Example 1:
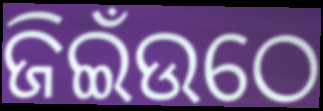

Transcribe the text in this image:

ଜିଇଁଉଠେ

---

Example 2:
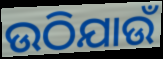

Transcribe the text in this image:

ଉଠିଯାଉଁ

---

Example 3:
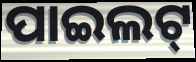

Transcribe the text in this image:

ପାଇଲଟ୍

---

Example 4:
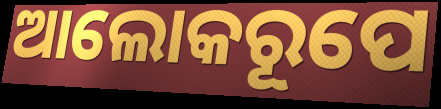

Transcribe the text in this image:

ଆଲୋକରୂପେ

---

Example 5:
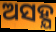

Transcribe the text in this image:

ଅସହ୍ଯ